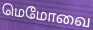
மெமோவை